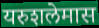
यरुशलेमास